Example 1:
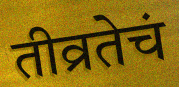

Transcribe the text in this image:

तीव्रतेचं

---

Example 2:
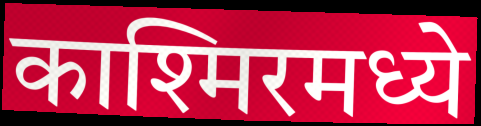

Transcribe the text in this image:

काश्मिरमध्ये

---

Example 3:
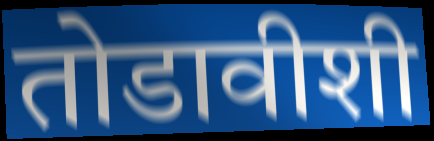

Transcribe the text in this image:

तोडावीशी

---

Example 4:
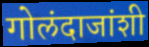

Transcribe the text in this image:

गोलंदाजांशी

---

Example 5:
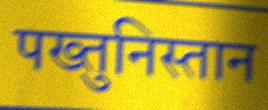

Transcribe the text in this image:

पख्तुनिस्तान